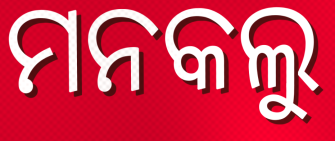
ମନକଲୁ